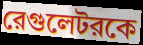
রেগুলেটরকে